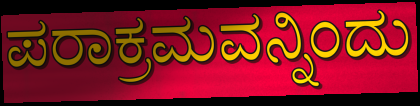
ಪರಾಕ್ರಮವನ್ನಿಂದು